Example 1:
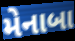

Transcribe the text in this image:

મેનાબા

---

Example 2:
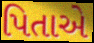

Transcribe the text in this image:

પિતાએ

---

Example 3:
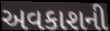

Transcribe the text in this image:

અવકાશની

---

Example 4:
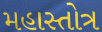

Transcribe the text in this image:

મહાસ્તોત્ર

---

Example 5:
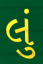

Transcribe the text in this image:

લું